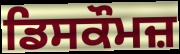
ਡਿਸਕੌਮਜ਼